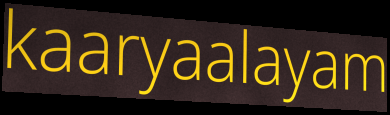
kaaryaalayam